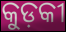
କୁଡ଼କୀ